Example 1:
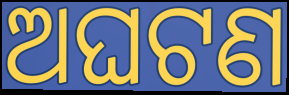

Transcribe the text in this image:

ଅଘଟଣ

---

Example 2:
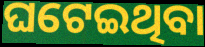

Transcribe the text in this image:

ଘଟେଇଥିବା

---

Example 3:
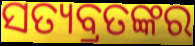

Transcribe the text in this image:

ସତ୍ୟବ୍ରତଙ୍କର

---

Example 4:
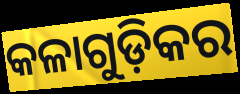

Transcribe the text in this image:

କଳାଗୁଡ଼ିକର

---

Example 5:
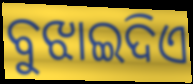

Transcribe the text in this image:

ବୁଝାଇଦିଏ